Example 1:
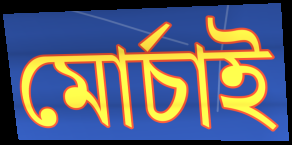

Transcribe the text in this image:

মোর্চাই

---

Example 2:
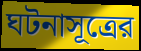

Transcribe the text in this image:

ঘটনাসূত্রের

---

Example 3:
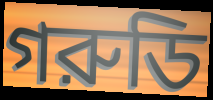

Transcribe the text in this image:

গরুডি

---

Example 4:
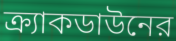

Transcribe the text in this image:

ক্র্যাকডাউনের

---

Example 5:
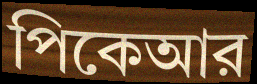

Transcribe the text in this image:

পিকেআর